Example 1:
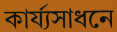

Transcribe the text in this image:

কার্য্যসাধনে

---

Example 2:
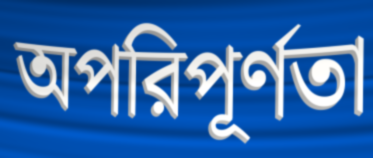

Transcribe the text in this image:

অপরিপূর্ণতা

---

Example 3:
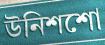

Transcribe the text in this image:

উনিশশো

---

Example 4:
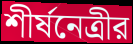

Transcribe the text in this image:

শীর্ষনেত্রীর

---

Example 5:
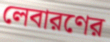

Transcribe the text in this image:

লেবারণের